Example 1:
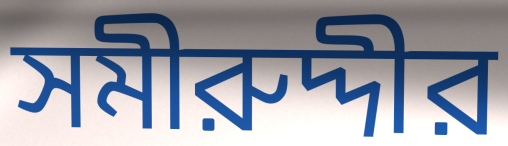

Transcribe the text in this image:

সমীরুদ্দীর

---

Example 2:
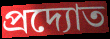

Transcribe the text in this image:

প্রদ্যোত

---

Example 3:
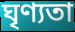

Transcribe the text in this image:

ঘৃণ্যতা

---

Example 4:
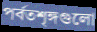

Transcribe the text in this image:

পর্বতশৃঙ্গগুলো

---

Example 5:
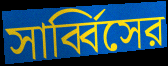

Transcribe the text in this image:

সার্ব্বিসের